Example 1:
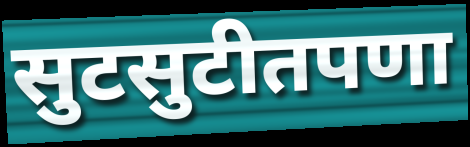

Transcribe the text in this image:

सुटसुटीतपणा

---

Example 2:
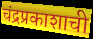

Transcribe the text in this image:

चंद्रप्रकाशाची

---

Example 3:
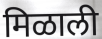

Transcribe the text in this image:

मिळाली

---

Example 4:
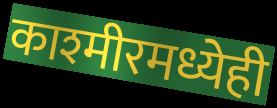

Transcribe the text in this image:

काश्‍मीरमध्येही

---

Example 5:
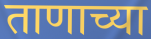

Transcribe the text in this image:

ताणाच्या